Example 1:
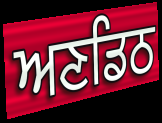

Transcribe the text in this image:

ਅਣਡਿਠ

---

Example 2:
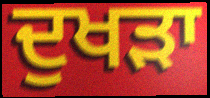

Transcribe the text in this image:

ਦੁਖੜਾ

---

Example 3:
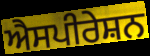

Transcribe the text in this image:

ਐਸਪੀਰੇਸ਼ਨ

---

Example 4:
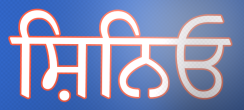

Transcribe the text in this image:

ਸ਼ਿਨਿਓ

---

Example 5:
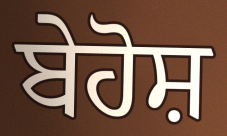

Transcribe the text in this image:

ਬੇਹੋਸ਼